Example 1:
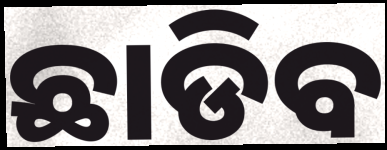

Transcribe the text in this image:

ଛାଡିବ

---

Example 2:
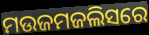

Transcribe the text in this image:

ମଉଜମଜଲିସରେ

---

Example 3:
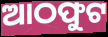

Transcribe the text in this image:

ଆଠଫୁଟ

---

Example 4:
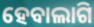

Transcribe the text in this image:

ହେବାଲାଗି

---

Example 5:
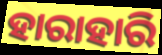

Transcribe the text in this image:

ହାରାହାରି